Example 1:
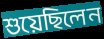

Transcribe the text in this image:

শুয়েছিলেন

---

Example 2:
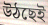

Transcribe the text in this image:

উঠছেই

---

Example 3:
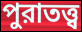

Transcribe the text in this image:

পুরাতত্ত্ব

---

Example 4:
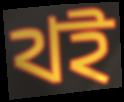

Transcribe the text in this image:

থই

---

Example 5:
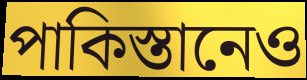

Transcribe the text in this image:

পাকিস্তানেও